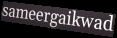
sameergaikwad